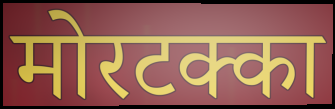
मोरटक्का